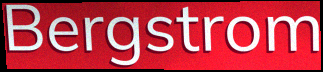
Bergstrom